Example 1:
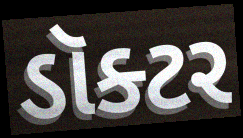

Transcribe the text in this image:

ડૉક્ટર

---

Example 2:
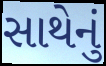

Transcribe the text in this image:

સાથેનું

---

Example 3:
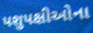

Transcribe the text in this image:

પશુપક્ષીઓના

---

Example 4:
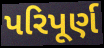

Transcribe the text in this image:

પરિપૂર્ણ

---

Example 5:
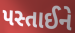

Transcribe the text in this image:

પસ્તાઈને